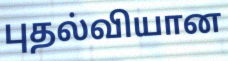
புதல்வியான